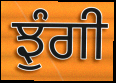
ਝੁੰਗੀ